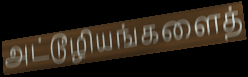
அட்டூழியங்களைத்